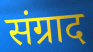
संग्राद